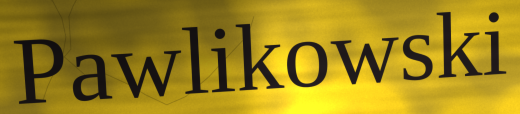
Pawlikowski